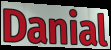
Danial